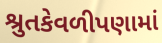
શ્રુતકેવળીપણામાં